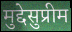
मुद्देसुप्रीम